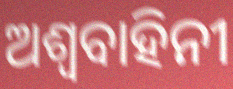
ଅଶ୍ୱବାହିନୀ